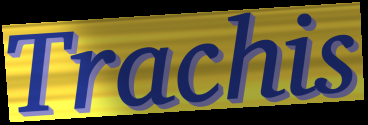
Trachis